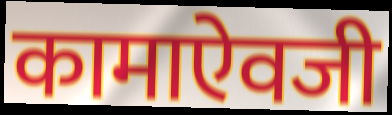
कामाऐवजी